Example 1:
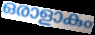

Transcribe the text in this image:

ഒരാളാകും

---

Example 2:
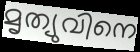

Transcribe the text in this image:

മൃത്യുവിനെ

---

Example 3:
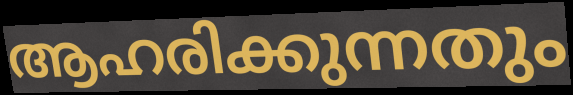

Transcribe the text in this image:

ആഹരിക്കുന്നതും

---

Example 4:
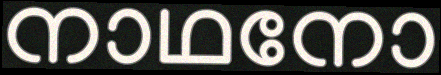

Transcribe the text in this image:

നാഥനോ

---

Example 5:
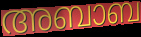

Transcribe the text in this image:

അബാബ